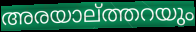
അരയാല്ത്തറയും